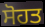
ਸੋਹਤ